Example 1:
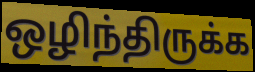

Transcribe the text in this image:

ஒழிந்திருக்க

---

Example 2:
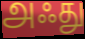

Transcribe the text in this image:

அஃது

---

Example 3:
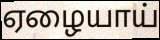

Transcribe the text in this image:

ஏழையாய்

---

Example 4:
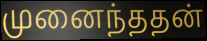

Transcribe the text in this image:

முனைந்ததன்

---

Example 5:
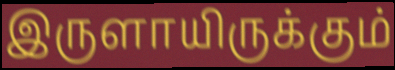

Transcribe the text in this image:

இருளாயிருக்கும்